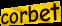
corbet